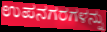
ಉಪನಗರಗಳನ್ನು